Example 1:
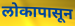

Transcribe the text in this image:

लोकापासून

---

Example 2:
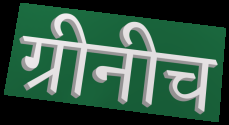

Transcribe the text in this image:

ग्रीनीच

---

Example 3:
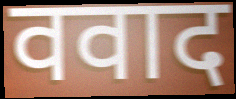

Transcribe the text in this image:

ववाद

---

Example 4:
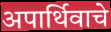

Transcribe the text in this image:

अपार्थिवाचे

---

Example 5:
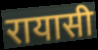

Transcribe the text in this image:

रायासी